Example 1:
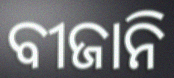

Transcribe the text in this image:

ବୀଜାନି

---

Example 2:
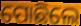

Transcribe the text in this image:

ପୋଛିଲେ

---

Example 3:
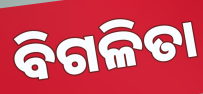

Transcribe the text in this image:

ବିଗଳିତା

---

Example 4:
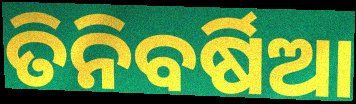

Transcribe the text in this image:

ତିନିବର୍ଷିଆ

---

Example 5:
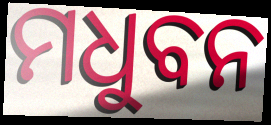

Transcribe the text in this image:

ମଧୁବନ